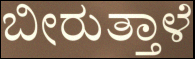
ಬೀರುತ್ತಾಳೆ